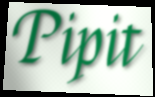
Pipit